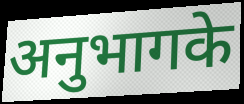
अनुभागके